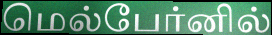
மெல்பேர்னில்